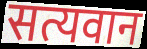
सत्यवान